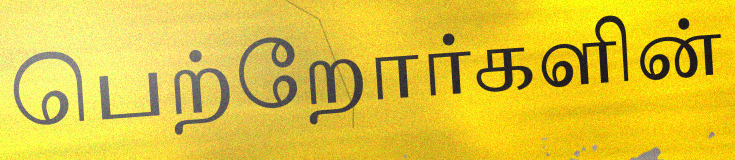
பெற்றோர்களின்